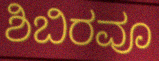
ಶಿಬಿರವೂ